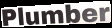
Plumber